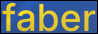
faber